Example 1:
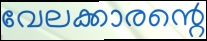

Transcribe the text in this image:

വേലക്കാരന്റെ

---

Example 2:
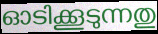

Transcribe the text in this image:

ഓടിക്കൂടുന്നതു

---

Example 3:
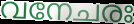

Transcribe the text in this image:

വനേചരഃ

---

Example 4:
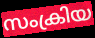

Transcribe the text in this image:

സംക്രിയ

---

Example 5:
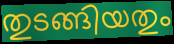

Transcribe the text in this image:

തുടങ്ങിയതും